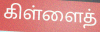
கிள்ளைத்